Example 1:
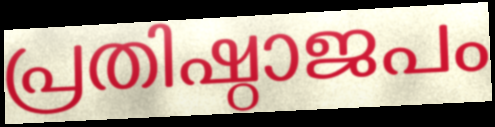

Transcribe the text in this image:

പ്രതിഷ്ഠാജപം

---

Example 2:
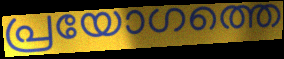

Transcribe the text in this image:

പ്രയോഗത്തെ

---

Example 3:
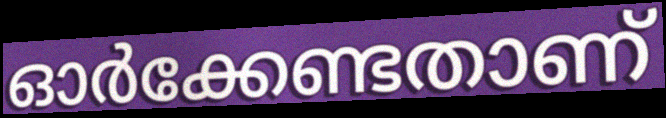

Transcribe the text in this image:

ഓർക്കേണ്ടതാണ്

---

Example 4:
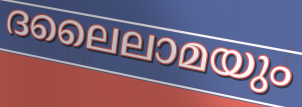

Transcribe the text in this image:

ദലൈലാമയും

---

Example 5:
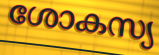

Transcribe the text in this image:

ശോകസ്യ